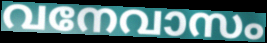
വനേവാസം